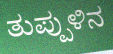
ತುಪ್ಪುಳಿನ